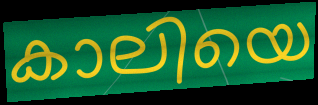
കാലിയെ